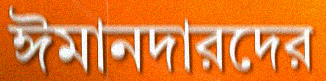
ঈমানদারদের